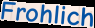
Frohlich